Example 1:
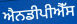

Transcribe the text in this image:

ਐਨਡੀਪੀਐੱਸ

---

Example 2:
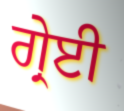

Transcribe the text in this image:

ਗ੍ਰੇਈ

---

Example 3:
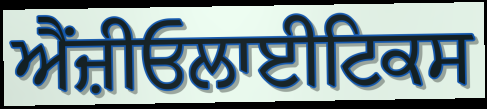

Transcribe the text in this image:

ਐਂਜ਼ੀਓਲਾਈਟਿਕਸ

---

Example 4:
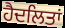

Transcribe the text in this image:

ਹੈਦਲਿਤਾਂ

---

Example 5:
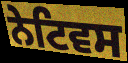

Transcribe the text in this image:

ਨੇਟਿਵਸ